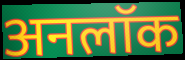
अनलॉक